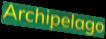
Archipelago